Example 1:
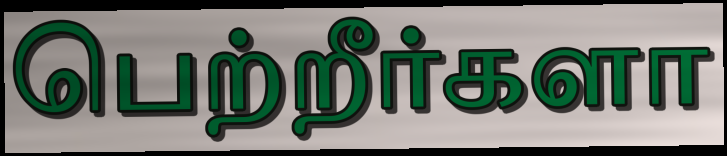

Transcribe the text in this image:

பெற்றீர்களா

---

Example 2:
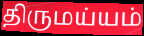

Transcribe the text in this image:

திருமய்யம்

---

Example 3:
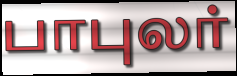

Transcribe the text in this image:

பாபுலர்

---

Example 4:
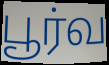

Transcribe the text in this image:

பூர்வ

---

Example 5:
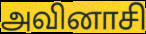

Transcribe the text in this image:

அவினாசி